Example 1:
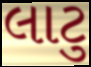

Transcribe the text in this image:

લાટુ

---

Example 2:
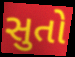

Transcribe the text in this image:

સુતો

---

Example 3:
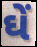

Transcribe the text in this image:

ઘેં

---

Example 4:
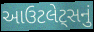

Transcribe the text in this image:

આઉટલેટ્સનું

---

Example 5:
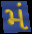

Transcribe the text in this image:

મં